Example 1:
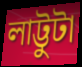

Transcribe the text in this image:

লাট্টুটা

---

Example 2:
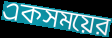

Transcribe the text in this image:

একসময়ের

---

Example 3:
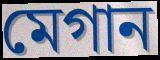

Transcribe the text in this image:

মেগান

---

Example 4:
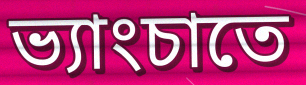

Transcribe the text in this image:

ভ্যাংচাতে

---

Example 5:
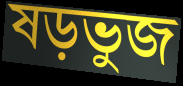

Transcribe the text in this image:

ষড়ভুজ